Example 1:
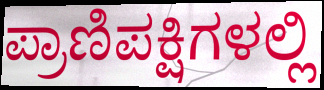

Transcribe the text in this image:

ಪ್ರಾಣಿಪಕ್ಷಿಗಳಲ್ಲಿ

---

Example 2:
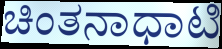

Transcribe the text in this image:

ಚಿಂತನಾಧಾಟಿ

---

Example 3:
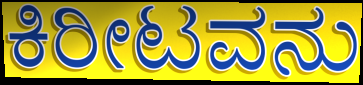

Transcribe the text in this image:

ಕಿರೀಟವನು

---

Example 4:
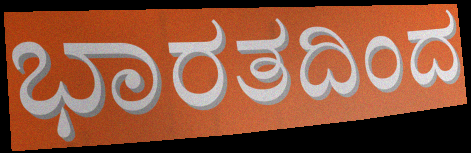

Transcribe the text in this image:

ಭಾರತದಿಂದ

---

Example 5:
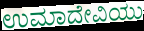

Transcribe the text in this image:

ಉಮಾದೇವಿಯು